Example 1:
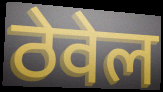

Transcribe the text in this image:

ठेवेल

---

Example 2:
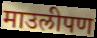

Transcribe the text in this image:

माउलीपण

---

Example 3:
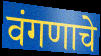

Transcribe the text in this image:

वंगणाचे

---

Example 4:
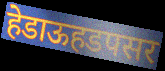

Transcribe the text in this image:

हेडाऊहडपसर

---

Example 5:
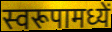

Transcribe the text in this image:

स्वरूपामध्यें